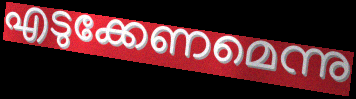
എടുക്കേണമെന്നു